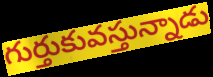
గుర్తుకువస్తున్నాడు